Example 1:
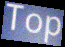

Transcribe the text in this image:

Top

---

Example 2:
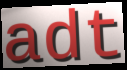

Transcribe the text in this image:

adt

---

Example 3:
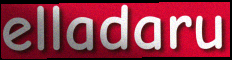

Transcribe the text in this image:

elladaru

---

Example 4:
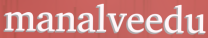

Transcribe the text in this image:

manalveedu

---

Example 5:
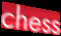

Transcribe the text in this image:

chess